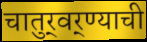
चातुर्वर्ण्याची